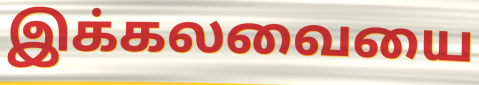
இக்கலவையை